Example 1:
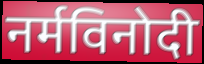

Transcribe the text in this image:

नर्मविनोदी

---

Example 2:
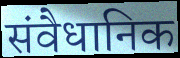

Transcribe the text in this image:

संवैधानिक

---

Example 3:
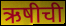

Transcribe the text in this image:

ऋषीची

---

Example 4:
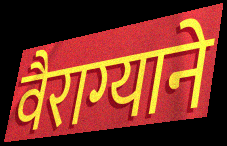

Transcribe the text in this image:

वैराग्याने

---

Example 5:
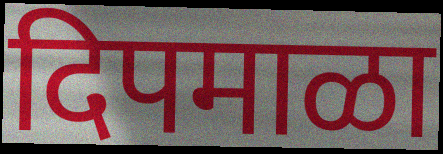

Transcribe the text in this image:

दिपमाळा